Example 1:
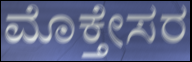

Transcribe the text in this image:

ಮೊಕ್ತೇಸರ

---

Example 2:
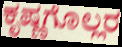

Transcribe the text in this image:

ಕೃಷ್ಣಗೊಲ್ಲರ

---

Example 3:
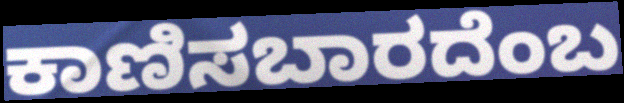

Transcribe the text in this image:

ಕಾಣಿಸಬಾರದೆಂಬ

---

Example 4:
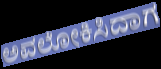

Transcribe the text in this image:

ಅವಲೋಕಿಸಿದಾಗ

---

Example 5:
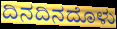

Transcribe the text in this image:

ದಿನದಿನದೊಳು